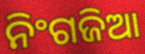
ନିଂଗଜିଆ